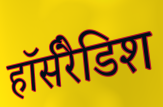
हॉर्सरैडिश